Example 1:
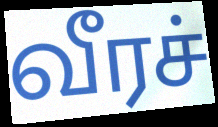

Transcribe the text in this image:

வீரச்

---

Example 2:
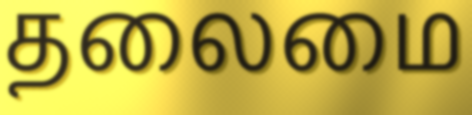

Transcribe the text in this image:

தலைமை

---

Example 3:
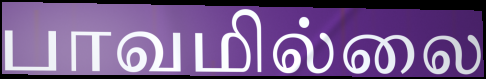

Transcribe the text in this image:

பாவமில்லை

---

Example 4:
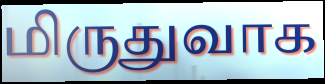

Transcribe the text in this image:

மிருதுவாக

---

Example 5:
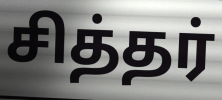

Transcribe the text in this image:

சித்தர்